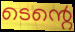
ടെന്റെ